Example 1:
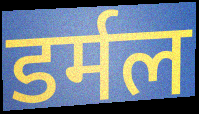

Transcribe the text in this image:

डर्मल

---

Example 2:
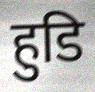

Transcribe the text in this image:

हुडि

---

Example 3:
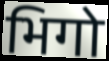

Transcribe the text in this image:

भिगो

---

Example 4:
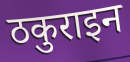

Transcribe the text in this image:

ठकुराइन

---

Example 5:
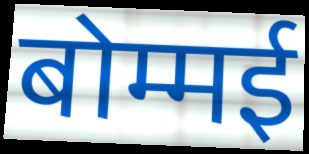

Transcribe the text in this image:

बोम्मई